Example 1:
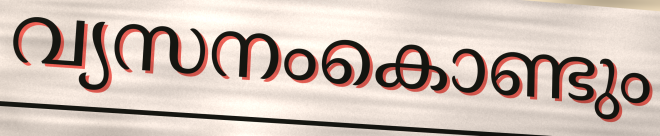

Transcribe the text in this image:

വ്യസനംകൊണ്ടും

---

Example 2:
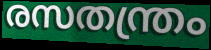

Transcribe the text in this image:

രസതന്ത്രം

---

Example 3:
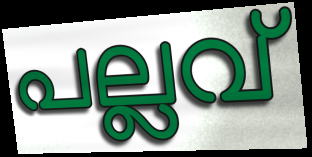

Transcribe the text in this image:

പല്ലവ്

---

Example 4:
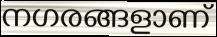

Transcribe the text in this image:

നഗരങ്ങളാണ്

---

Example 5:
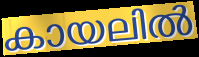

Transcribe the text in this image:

കായലിൽ